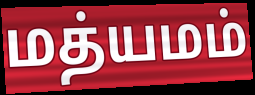
மத்யமம்